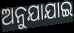
ଅନୁଯାଯାଇ